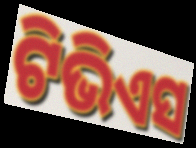
ଟିଭିଏସ